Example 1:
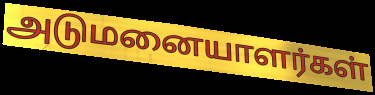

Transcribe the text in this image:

அடுமனையாளர்கள்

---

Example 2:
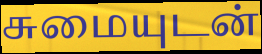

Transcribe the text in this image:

சுமையுடன்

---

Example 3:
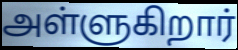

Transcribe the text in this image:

அள்ளுகிறார்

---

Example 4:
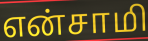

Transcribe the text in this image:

என்சாமி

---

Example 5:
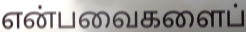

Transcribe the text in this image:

என்பவைகளைப்